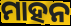
ମାହନ